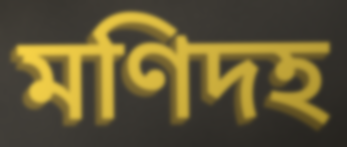
মণিদহ